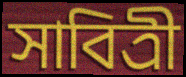
সাবিত্ৰী